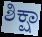
ಶಿಕ್ಷಾ